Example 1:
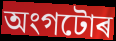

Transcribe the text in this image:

অংগটোৰ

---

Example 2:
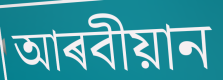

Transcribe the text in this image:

আৰবীয়ান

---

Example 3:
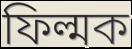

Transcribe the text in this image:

ফিল্মক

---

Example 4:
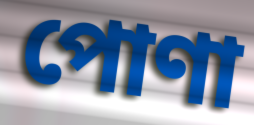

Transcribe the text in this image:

পোণা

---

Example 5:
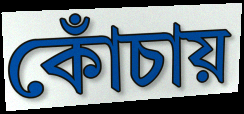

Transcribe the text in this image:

কোঁচায়